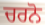
ਚਰਨੋ